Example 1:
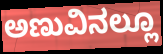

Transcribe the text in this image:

ಅಣುವಿನಲ್ಲೂ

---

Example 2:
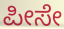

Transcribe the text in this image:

ಪೀಸೇ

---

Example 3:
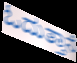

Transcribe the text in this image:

ಓದುತ್ತಾನೆ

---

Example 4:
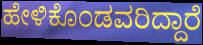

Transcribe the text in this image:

ಹೇಳಿಕೊಂಡವರಿದ್ದಾರೆ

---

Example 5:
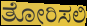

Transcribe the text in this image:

ತೋರಿಸಲಿ